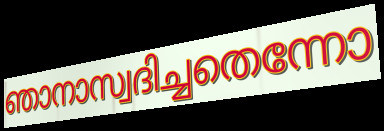
ഞാനാസ്വദിച്ചതെന്നോ